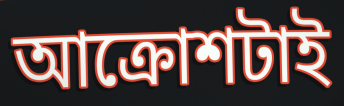
আক্রোশটাই